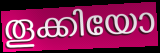
തൂക്കിയോ